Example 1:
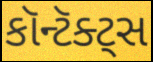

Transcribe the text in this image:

કૉન્ટૅક્ટ્સ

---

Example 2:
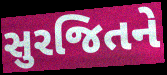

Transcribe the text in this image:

સુરજિતને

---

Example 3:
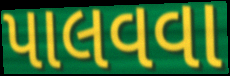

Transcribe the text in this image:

પાલવવા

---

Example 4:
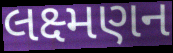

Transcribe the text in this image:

લક્ષ્મણન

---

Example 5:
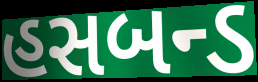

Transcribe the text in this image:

હસબન્ડ